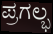
ಪ್ರಗಲ್ಭ